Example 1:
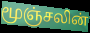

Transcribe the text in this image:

மூஞ்சலின்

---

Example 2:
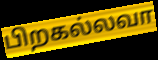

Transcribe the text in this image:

பிறகல்லவா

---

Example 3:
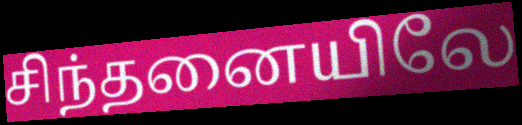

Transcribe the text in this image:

சிந்தனையிலே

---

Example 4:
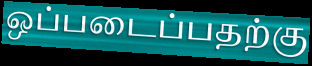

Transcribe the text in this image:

ஒப்படைப்பதற்கு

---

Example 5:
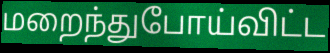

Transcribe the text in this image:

மறைந்துபோய்விட்ட